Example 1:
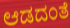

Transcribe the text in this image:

ಆಡದಂತೆ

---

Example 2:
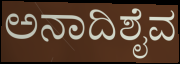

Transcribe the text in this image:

ಅನಾದಿಶೈವ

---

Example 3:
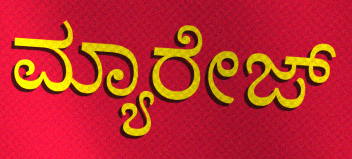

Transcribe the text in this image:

ಮ್ಯಾರೇಜ್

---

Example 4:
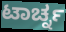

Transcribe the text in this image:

ಟಾರ್ಚ್ನ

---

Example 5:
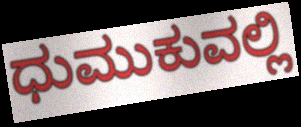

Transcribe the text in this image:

ಧುಮುಕುವಲ್ಲಿ